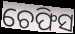
ଚେଫିସ